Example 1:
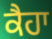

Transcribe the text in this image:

ਕੈਹਾ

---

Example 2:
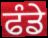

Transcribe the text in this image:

ਫੰਡੇ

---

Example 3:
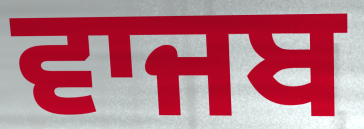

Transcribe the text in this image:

ਵਾਜਬ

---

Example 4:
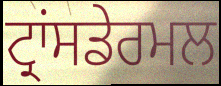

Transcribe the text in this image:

ਟ੍ਰਾਂਸਡੇਰਮਲ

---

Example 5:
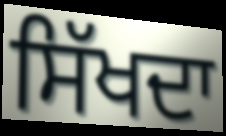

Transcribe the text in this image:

ਸਿੱਖਦਾ